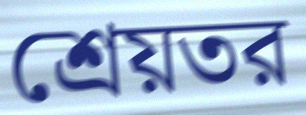
শ্রেয়তর